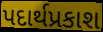
પદાર્થપ્રકાશ